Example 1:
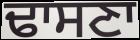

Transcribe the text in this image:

ਢਾਸਣਾ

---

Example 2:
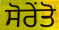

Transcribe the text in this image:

ਸੋਰੇਂਤੋ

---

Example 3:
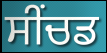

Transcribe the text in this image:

ਸੀਂਚਡ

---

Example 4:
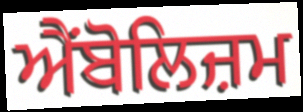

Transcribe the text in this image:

ਐਂਬੋਲਿਜ਼ਮ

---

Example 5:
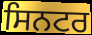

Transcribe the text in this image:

ਸਿਨਟਰ